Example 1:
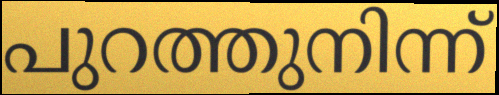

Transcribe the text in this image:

പുറത്തുനിന്ന്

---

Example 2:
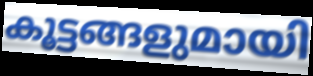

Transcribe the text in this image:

കൂട്ടങ്ങളുമായി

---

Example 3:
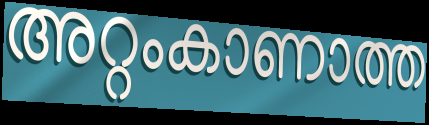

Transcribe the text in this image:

അറ്റംകാണാത്ത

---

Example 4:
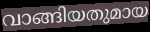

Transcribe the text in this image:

വാങ്ങിയതുമായ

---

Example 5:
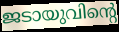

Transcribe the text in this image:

ജടായുവിന്റെ